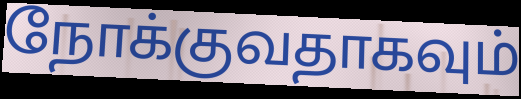
நோக்குவதாகவும்